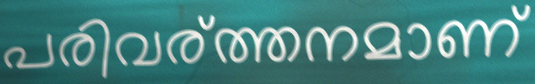
പരിവര്ത്തനമാണ്